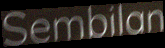
Sembilan